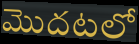
మొదటలో